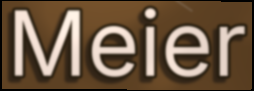
Meier